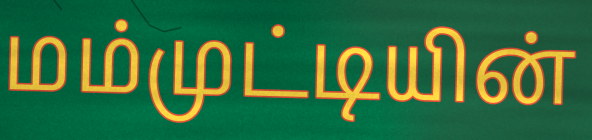
மம்முட்டியின்